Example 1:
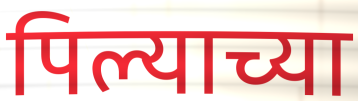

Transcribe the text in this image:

पिल्याच्या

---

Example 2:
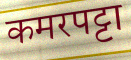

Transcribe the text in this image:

कमरपट्टा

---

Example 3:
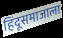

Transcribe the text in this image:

हिंदूसमाजाला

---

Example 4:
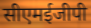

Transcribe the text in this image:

सीएमईजीपी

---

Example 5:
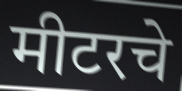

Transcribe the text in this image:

मीटरचे